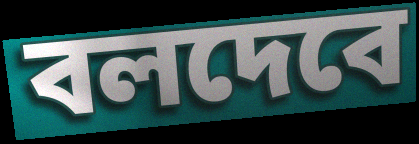
বলদেবে